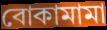
বোকামামা